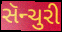
સૅન્ચુરી